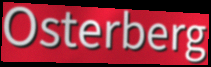
Osterberg